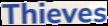
Thieves